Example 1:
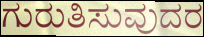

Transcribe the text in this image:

ಗುರುತಿಸುವುದರ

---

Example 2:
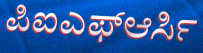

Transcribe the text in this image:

ಪಿಐಎಫ್ಆರ್ಸಿ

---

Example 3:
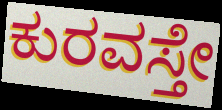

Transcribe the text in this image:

ಕುರವಸ್ತೇ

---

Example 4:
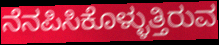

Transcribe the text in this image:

ನೆನಪಿಸಿಕೊಳ್ಳುತ್ತಿರುವ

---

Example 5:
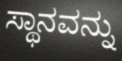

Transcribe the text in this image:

ಸ್ಥಾನವನ್ನು